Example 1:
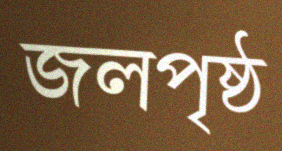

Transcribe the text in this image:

জলপৃষ্ঠ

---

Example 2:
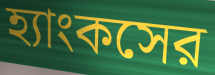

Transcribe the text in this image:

হ্যাংকসের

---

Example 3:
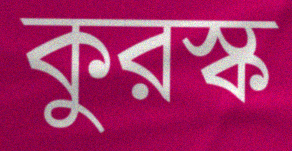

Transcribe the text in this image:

কুরস্ক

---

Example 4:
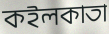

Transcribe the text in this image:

কইলকাতা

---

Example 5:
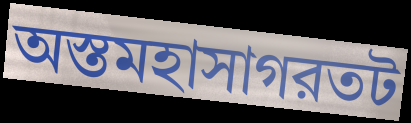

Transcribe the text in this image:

অস্তমহাসাগরতট